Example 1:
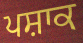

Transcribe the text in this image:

ਪਸ਼ਾਕ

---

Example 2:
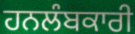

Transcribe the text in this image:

ਹਨਲੰਬਕਾਰੀ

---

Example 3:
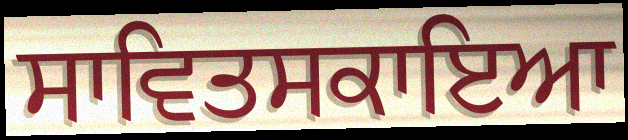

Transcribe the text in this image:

ਸਾਵਿਤਸਕਾਇਆ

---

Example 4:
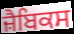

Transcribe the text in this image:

ਜ਼ੈਬਿਕਸ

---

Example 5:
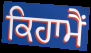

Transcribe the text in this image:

ਕਿਹਾਮੈਂ